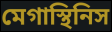
মেগাস্থিনিস